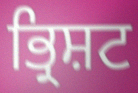
ਭ੍ਰਿਸ਼ਟ